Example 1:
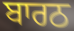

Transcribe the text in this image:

ਬਾਰਠ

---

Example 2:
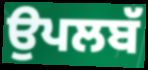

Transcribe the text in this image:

ਉਪਲਬੱ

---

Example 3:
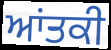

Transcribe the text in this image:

ਆਂਤਕੀ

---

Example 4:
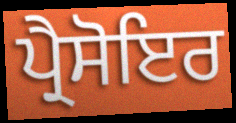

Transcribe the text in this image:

ਪ੍ਰੈਸੋਇਰ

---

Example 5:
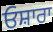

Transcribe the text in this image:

ਓਸ਼ਾਰਾ